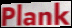
Plank